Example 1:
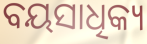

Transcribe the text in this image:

ବୟସାଧିକ୍ୟ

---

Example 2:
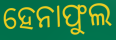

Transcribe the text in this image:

ହେନାଫୁଲ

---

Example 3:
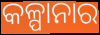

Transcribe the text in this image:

କଳ୍ପାନାର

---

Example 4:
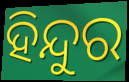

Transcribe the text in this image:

ହିନ୍ଦୁର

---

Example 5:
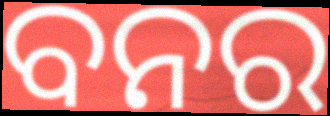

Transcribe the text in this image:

ବନର